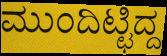
ಮುಂದಿಟ್ಟಿದ್ದ